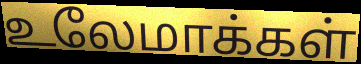
உலேமாக்கள்